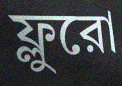
ফ্লুরো